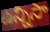
ఉన్నిసా